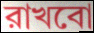
রাখবো